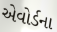
એવોર્ડના